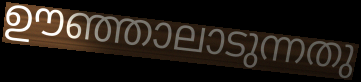
ഊഞ്ഞാലാടുന്നതു